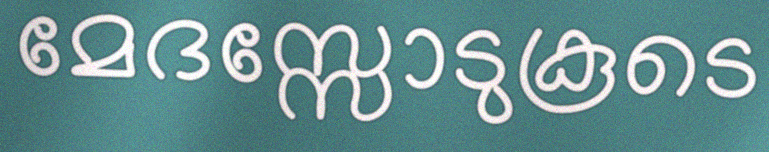
മേദസ്സോടുകൂടെ